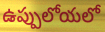
ఉప్పులోయలో